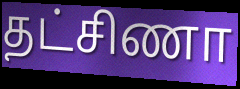
தட்சிணா